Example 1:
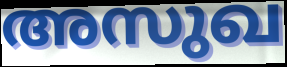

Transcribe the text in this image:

അസുഖ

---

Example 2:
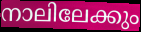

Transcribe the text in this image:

നാലിലേക്കും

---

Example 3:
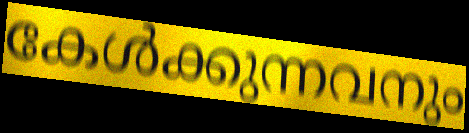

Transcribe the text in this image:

കേൾക്കുന്നവനും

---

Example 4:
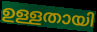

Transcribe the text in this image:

ഉള്ളതായി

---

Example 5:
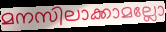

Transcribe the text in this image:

മനസിലാക്കാമല്ലോ